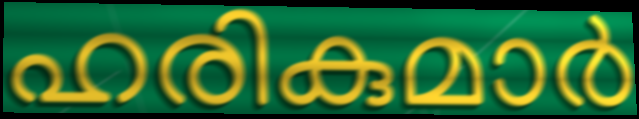
ഹരികുമാർ